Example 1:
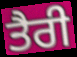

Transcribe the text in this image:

ਤੈਰੀ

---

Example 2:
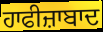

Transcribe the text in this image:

ਹਾਫੀਜ਼ਾਬਾਦ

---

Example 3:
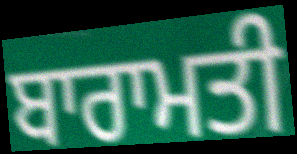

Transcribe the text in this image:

ਬਾਰਾਮਤੀ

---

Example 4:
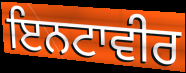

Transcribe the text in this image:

ਇਨਟਾਵੀਰ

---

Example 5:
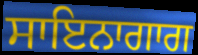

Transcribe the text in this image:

ਸਾਇਨਾਗਾਗ